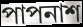
পাপনাশ